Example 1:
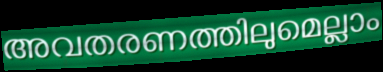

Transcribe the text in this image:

അവതരണത്തിലുമെല്ലാം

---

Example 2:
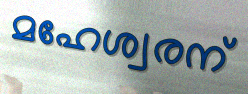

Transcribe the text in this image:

മഹേശ്വരന്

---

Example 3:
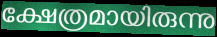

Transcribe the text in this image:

ക്ഷേത്രമായിരുന്നു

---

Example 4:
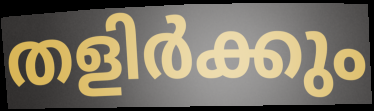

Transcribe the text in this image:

തളിർക്കും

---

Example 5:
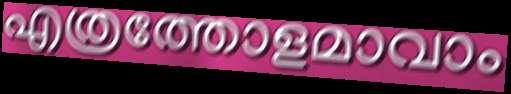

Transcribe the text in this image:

എത്രത്തോളമാവാം